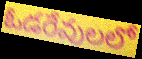
ఓడరేవులలో